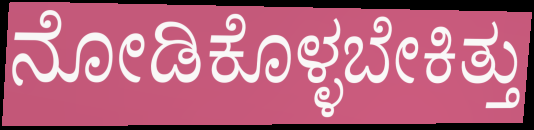
ನೋಡಿಕೊಳ್ಳಬೇಕಿತ್ತು